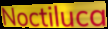
Noctiluca